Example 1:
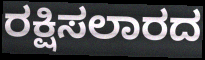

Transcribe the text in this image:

ರಕ್ಷಿಸಲಾರದ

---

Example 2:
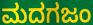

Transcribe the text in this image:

ಮದಗಜಂ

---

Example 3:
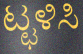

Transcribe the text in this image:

ಟ್ಟಳಿಸಿ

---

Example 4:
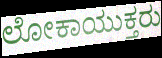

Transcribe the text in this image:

ಲೋಕಾಯುಕ್ತರು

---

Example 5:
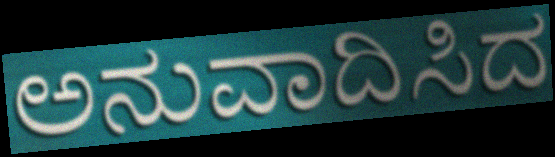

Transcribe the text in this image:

ಅನುವಾದಿಸಿದ